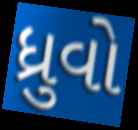
ધ્રુવો